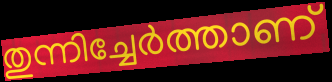
തുന്നിച്ചേർത്താണ്